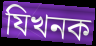
যিখনক